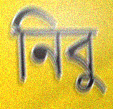
নিবু